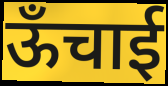
ऊँचाई